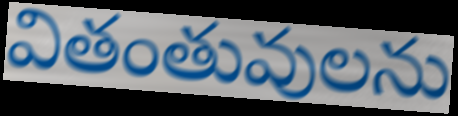
వితంతువులను